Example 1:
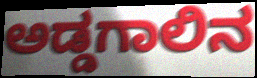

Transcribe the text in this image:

ಅಡ್ಡಗಾಲಿನ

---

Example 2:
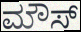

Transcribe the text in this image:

ಮೌಸ್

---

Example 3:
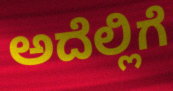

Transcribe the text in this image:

ಅದೆಲ್ಲಿಗೆ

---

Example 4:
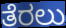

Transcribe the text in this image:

ತೆರಲು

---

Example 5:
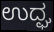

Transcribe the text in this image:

ಉದ್ಘ